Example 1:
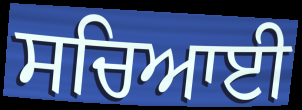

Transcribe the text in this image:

ਸਚਿਆਈ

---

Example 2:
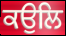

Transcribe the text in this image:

ਕਉਲਿ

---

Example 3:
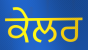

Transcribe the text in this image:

ਕੇਲਰ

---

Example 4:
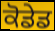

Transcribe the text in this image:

ਕੋਡੇਡ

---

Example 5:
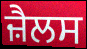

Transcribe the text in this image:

ਜ਼ੈਲਸ